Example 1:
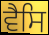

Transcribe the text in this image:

ਵੈਸਿ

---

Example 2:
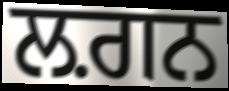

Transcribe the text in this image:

ਲ਼ਗਨ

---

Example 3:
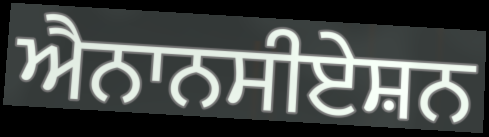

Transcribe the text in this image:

ਐਨਾਨਸੀਏਸ਼ਨ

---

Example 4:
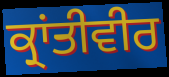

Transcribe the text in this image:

ਕ੍ਰਾਂਤੀਵੀਰ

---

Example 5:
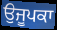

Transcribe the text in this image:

ਉਜੂਪਕਾ